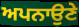
ਅਪਨਾਉਣੇ